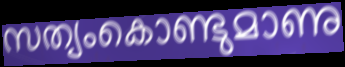
സത്യംകൊണ്ടുമാണു